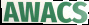
AWACS